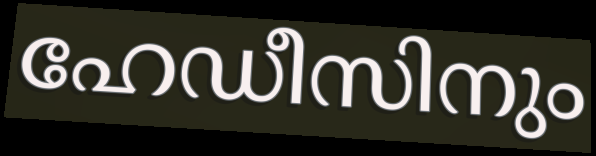
ഹേഡീസിനും